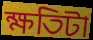
ক্ষতিটা